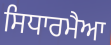
ਸਿਧਾਰਮੈਆ